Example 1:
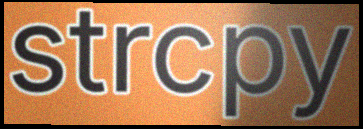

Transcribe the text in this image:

strcpy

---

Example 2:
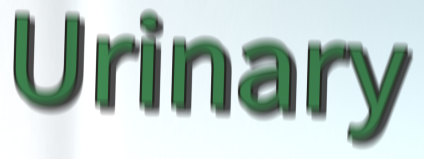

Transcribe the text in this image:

Urinary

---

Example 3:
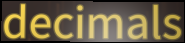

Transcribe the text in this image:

decimals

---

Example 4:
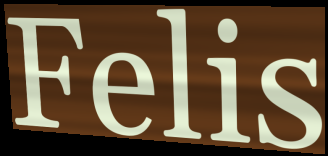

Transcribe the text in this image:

Felis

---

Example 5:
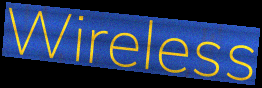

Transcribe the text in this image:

Wireless